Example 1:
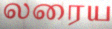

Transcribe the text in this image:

லரைய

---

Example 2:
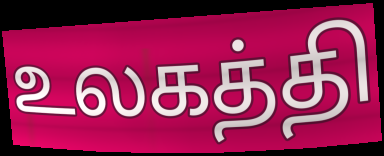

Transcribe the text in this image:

உலகத்தி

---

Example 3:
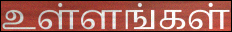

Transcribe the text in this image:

உள்ளங்கள்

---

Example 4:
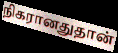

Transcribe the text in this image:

நிகரானதுதான்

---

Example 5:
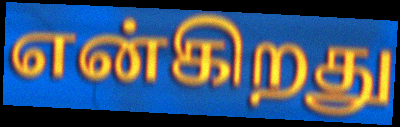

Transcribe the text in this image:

என்கிறது